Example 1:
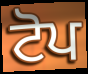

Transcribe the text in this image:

ਟੋਪ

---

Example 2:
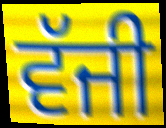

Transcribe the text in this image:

ਵੱਜੀ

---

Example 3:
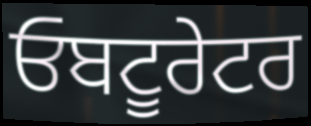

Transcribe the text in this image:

ਓਬਟੂਰੇਟਰ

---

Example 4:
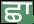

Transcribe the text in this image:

ਛਾ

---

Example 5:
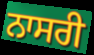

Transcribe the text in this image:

ਨਾਸਰੀ